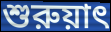
শুরুয়াৎ